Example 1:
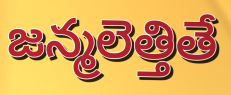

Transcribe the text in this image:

జన్మలెత్తితే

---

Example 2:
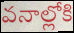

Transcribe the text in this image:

వనాల్లోకి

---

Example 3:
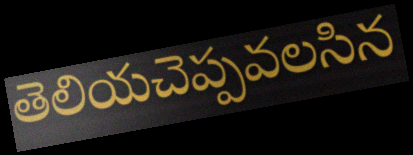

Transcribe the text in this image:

తెలియచెప్పవలసిన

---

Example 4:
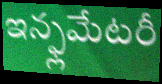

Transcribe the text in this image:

ఇన్ఫ్లమేటరీ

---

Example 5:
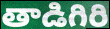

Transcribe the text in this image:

తాడిగిరి